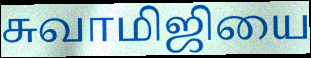
சுவாமிஜியை